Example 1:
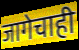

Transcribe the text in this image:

जागेचाही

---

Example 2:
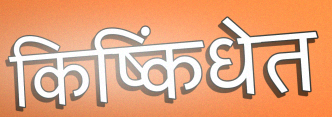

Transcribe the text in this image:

किष्किंधेत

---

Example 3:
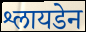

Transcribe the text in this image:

श्लायडेन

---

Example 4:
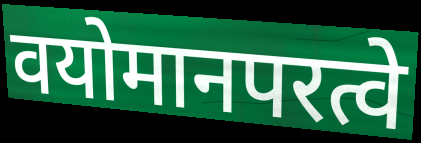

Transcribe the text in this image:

वयोमानपरत्वे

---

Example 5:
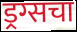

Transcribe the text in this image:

ड्रग्सचा